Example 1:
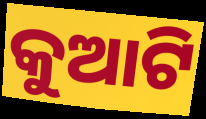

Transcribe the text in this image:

କୁଆଟି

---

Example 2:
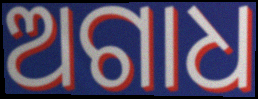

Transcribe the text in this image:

ଅଗାଧ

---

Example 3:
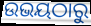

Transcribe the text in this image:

ଉଭୟଠାରୁ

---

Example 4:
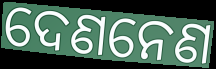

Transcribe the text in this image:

ଦେଣନେଣ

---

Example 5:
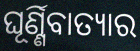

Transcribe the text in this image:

ଘୂର୍ଣ୍ଣିବାତ୍ୟାର